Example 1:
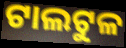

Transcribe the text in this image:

ଟାଲଟୁଳ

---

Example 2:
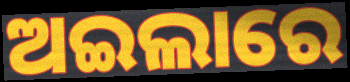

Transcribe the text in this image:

ଅଇଲାରେ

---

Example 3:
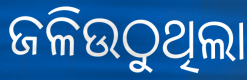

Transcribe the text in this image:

ଜଳିଉଠୁଥିଲା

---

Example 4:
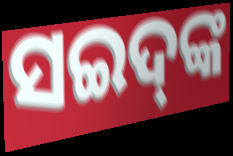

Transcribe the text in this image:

ସଇଦ୍‌ଙ୍କ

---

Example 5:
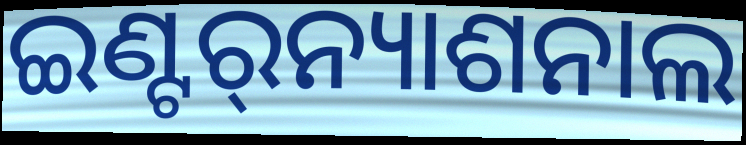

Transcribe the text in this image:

ଇଣ୍ଟର୍‌ନ୍ୟାଶନାଲ